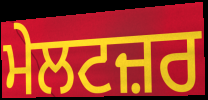
ਮੇਲਟਜ਼ਰ